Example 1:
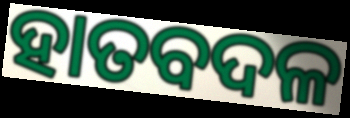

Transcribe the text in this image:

ହାତବଦଳ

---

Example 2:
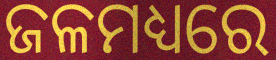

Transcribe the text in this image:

ଜଳମଧ୍ଯରେ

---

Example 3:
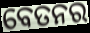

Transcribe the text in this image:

ବେତନର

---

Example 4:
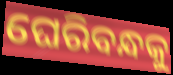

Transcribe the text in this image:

ଘେରିବନ୍ଧକୁ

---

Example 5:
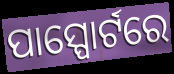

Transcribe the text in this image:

ପାସ୍ପୋର୍ଟରେ